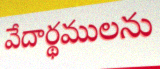
వేదార్థములను